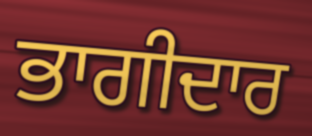
ਭਾਗੀਦਾਰ